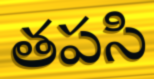
తపసి